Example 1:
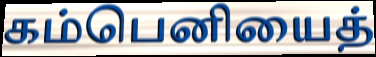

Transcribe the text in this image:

கம்பெனியைத்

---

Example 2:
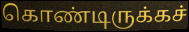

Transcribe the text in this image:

கொண்டிருக்கச்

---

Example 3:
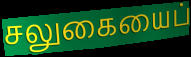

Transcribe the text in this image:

சலுகையைப்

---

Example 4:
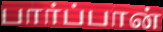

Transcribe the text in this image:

பார்ப்பான்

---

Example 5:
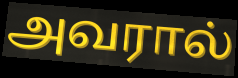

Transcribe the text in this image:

அவரால்